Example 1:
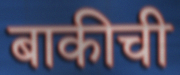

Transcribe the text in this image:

बाकीची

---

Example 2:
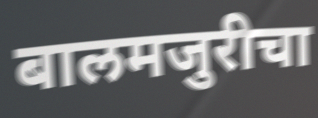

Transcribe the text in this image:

बालमजुरीचा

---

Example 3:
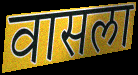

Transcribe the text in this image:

वासला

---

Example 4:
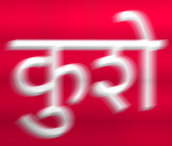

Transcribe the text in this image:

कुशे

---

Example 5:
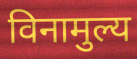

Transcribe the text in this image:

विनामुल्य